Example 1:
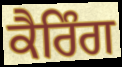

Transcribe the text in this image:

ਕੈਰਿੰਗ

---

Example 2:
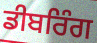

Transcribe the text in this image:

ਡੀਬਰਿੰਗ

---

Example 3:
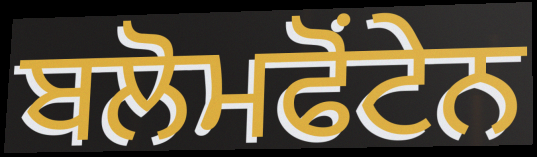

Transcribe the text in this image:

ਬਲੋਮਫੋਂਟੇਨ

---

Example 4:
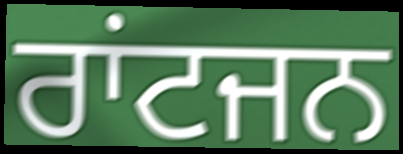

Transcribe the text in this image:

ਰਾਂਟਜਨ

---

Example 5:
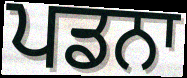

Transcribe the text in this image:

ਪਡਨਾ